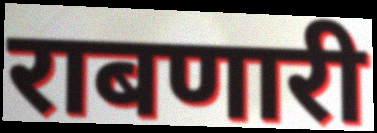
राबणारी